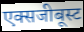
एक्सजीबूस्ट